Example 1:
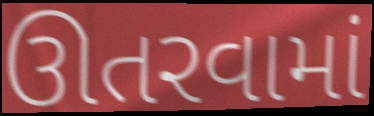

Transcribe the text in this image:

ઊતરવામાં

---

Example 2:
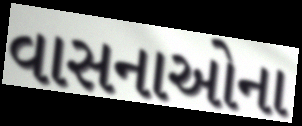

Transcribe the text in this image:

વાસનાઓના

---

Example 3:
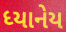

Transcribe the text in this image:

ધ્યાનેય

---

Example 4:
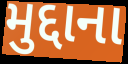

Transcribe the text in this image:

મુદ્દાના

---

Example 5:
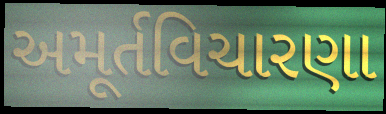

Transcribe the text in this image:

અમૂર્તવિચારણા